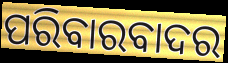
ପରିବାରବାଦର